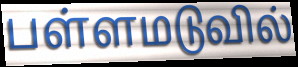
பள்ளமடுவில்